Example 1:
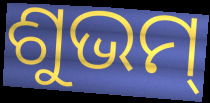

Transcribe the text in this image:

ଶୁଭମ୍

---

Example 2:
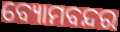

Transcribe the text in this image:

ବ୍ୟୋମବନ୍ଦର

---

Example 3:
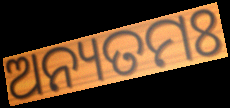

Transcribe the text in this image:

ଅନ୍ୟତମଃ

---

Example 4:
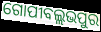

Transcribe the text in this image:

ଗୋପୀବଲ୍ଲଭପୁର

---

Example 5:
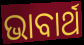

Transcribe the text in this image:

ଭାବାର୍ଥ